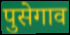
पुसेगाव